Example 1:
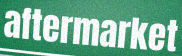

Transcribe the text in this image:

aftermarket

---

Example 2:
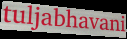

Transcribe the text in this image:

tuljabhavani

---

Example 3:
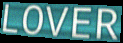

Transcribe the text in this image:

LOVER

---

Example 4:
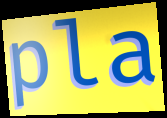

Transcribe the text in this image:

pla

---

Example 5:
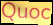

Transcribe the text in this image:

Quoc